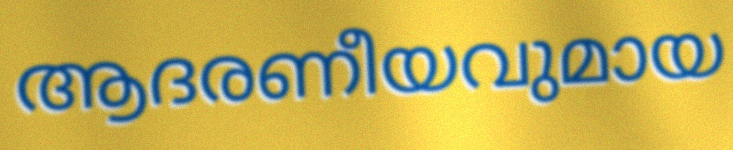
ആദരണീയവുമായ